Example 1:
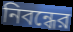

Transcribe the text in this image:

নিবন্ধের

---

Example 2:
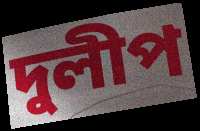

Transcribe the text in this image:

দুলীপ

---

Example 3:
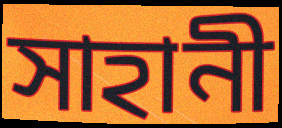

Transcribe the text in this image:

সাহানী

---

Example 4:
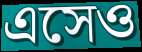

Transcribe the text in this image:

এসেও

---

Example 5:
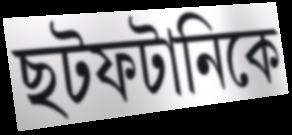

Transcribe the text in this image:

ছটফটানিকে